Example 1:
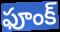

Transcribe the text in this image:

ఫూంక్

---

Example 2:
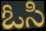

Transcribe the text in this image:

ఓసి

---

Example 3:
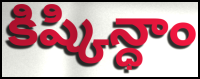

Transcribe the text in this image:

కిష్కిన్ధాం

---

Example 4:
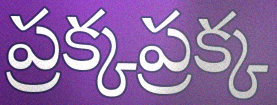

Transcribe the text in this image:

ప్రక్కప్రక్క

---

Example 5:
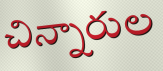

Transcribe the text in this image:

చిన్నారుల